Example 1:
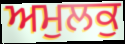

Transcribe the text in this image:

ਅਮੁਲਕੁ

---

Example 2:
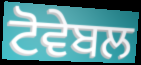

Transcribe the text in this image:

ਟੋਵੇਬਲ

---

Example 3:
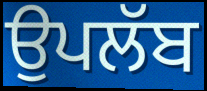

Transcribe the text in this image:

ਉਪਲੱਬ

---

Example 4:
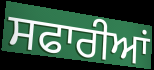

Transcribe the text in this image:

ਸਫਾਰੀਆਂ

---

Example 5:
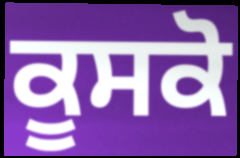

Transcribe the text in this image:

ਕੂਸਕੋ